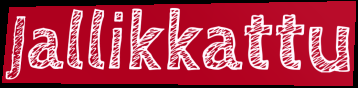
Jallikkattu